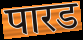
पारड